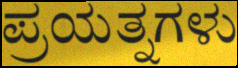
ಪ್ರಯತ್ನಗಳು